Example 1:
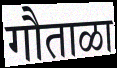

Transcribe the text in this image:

गौताळा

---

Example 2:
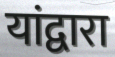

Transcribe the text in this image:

यांद्वारा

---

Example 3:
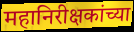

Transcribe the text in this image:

महानिरीक्षकांच्या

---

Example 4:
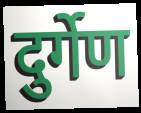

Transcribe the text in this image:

दुर्गेण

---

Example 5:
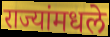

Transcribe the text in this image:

राज्यांमधले